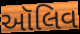
ઑલિવ